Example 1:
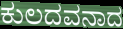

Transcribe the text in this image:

ಕುಲದವನಾದ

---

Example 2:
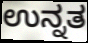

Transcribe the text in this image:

ಉನ್ನತ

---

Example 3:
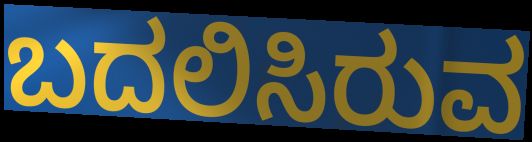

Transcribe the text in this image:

ಬದಲಿಸಿರುವ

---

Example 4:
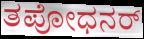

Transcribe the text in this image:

ತಪೋಧನರ್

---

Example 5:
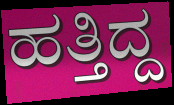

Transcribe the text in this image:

ಹತ್ತಿದ್ದ